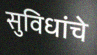
सुविधांचे